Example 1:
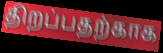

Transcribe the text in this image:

திறப்பதற்காக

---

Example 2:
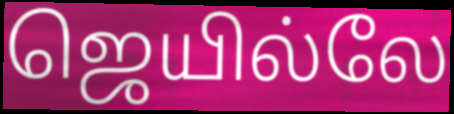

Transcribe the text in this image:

ஜெயில்லே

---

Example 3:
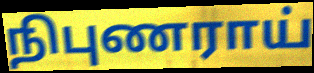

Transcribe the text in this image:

நிபுணராய்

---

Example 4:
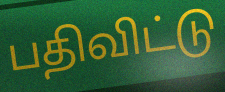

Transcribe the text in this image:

பதிவிட்டு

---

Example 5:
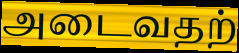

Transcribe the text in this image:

அடைவதற்